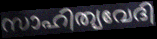
സാഹിത്യവേദി